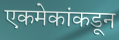
एकमेकांकडून